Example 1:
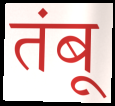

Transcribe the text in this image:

तंबू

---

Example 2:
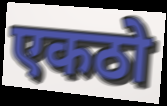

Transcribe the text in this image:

एकठो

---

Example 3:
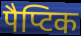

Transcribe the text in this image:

पैप्टिक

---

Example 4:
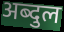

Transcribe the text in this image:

अब्दुल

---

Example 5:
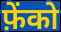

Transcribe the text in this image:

फ़ेंको